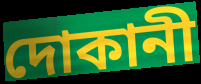
দোকানী